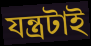
যন্ত্রটাই